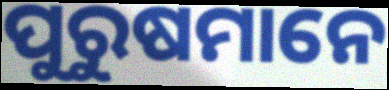
ପୁରୁଷମାନେ